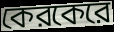
কেরকেরে